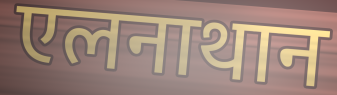
एलनाथान